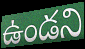
ఉండని